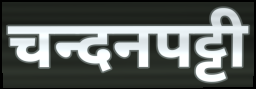
चन्दनपट्टी